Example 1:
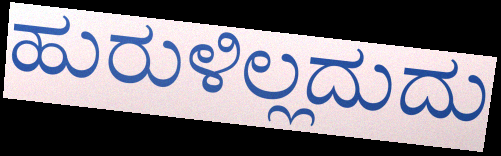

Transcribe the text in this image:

ಹುರುಳಿಲ್ಲದುದು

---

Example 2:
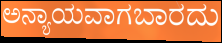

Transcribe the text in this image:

ಅನ್ಯಾಯವಾಗಬಾರದು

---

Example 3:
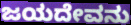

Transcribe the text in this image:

ಜಯದೇವನು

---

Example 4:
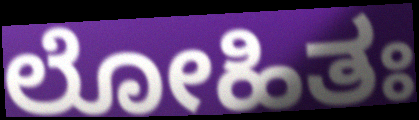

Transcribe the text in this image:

ಲೋಹಿತಃ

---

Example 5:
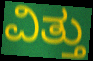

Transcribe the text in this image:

ವಿತ್ತು